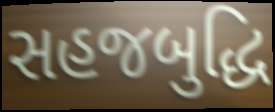
સહજબુદ્ધિ